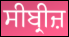
ਸੀਬ੍ਰੀਜ਼